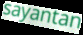
sayantan